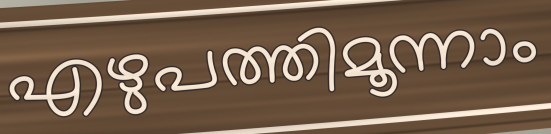
എഴുപത്തിമൂന്നാം